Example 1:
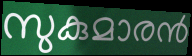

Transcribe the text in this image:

സുകുമാരൻ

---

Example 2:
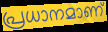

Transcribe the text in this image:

പ്രധാനമാണ്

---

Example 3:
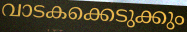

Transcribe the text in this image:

വാടകക്കെടുക്കും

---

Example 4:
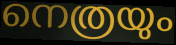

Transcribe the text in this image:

നെത്രയും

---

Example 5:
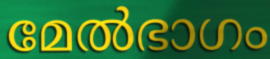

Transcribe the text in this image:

മേൽഭാഗം